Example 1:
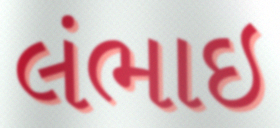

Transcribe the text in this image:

લંભાઇ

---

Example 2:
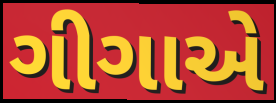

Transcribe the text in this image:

ગીગાએ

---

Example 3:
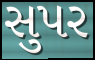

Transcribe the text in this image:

સુપર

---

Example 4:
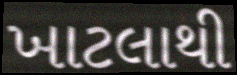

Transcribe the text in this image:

ખાટલાથી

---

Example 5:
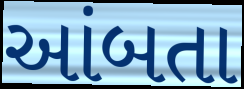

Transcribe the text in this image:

આંબતા